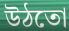
উঠতো